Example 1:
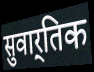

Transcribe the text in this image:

सुवार्तिक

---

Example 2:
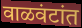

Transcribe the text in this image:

वाळवंटांत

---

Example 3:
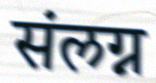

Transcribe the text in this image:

संलग्न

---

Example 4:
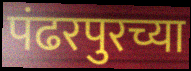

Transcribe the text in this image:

पंढरपुरच्या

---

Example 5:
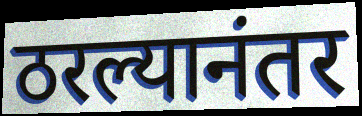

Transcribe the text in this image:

ठरल्यानंतर